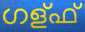
ഗള്ഫ്